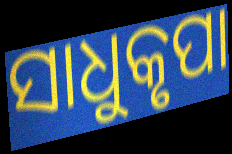
ସାଧୁକୃପା